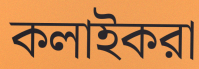
কলাইকরা